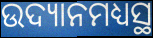
ଉଦ୍ୟାନମଧ୍ୟସ୍ଥ